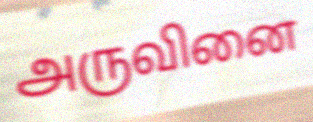
அருவினை